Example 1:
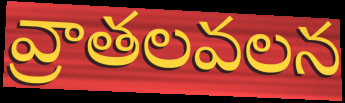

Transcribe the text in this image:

వ్రాతలవలన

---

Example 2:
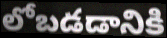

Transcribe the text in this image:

లోబడడానికి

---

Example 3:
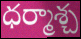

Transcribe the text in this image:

ధర్మాశ్చ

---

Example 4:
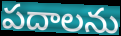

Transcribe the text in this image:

పదాలను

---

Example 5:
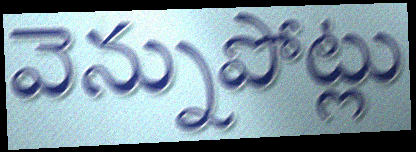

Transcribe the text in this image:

వెన్నుపోట్లు